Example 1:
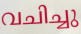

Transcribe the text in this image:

വചിച്ചു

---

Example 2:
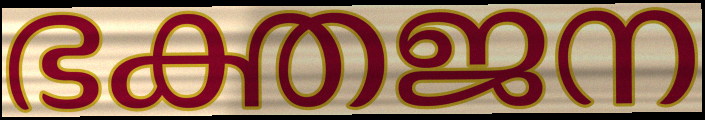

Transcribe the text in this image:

ഭക്തജന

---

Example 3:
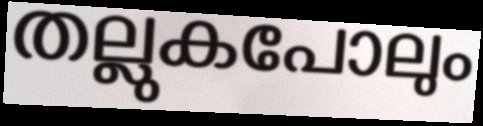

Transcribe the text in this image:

തല്ലുകപോലും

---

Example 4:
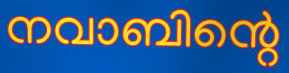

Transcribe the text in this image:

നവാബിന്റെ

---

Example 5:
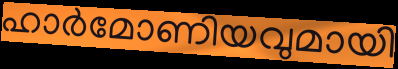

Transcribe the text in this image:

ഹാർമോണിയവുമായി